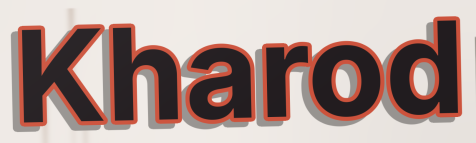
Kharod